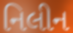
નિલીન